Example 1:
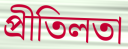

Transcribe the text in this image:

প্ৰীতিলতা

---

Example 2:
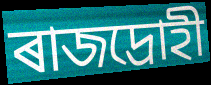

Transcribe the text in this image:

ৰাজদ্ৰোহী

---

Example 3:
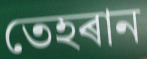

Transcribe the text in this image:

তেহৰান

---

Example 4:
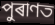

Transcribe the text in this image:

পুৰাণত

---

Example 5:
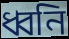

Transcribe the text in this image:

ধ্বনি